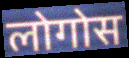
लोगोस